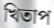
খিতাপ